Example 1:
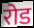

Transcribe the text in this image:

रोड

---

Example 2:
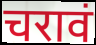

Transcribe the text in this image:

चरावं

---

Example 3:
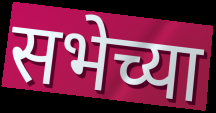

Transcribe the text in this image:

सभेच्या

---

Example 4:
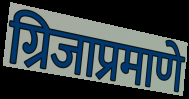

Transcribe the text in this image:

ग्रिजाप्रमाणे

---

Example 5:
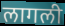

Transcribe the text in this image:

लागली